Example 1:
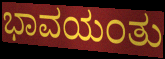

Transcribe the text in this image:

ಭಾವಯಂತು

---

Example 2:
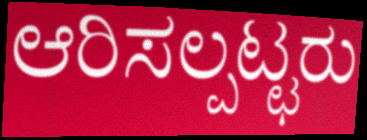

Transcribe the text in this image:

ಆರಿಸಲ್ಪಟ್ಟರು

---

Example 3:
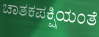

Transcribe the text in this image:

ಚಾತಕಪಕ್ಷಿಯಂತೆ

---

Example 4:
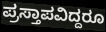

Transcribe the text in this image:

ಪ್ರಸ್ತಾಪವಿದ್ದರೂ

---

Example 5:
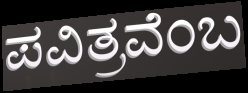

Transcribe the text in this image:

ಪವಿತ್ರವೆಂಬ